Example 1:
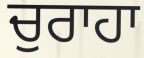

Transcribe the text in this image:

ਚੁਰਾਹਾ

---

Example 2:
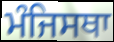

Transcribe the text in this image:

ਮੰਜਿਸਥਾ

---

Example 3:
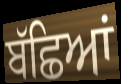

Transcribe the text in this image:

ਬੱਛਿਆਂ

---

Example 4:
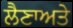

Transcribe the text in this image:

ਲੈਣਾਅਤੇ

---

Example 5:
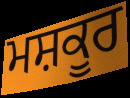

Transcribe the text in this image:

ਮਸ਼ਕੂਰ